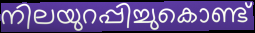
നിലയുറപ്പിച്ചുകൊണ്ട്